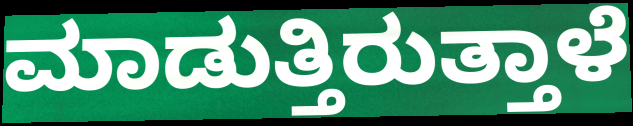
ಮಾಡುತ್ತಿರುತ್ತಾಳೆ